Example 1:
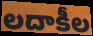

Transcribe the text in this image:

లదాకీల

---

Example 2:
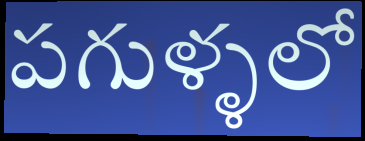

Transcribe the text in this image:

పగుళ్ళలో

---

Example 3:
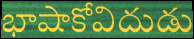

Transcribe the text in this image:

భాషాకోవిదుడు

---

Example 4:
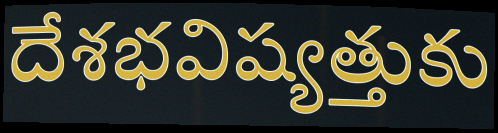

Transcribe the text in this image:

దేశభవిష్యత్తుకు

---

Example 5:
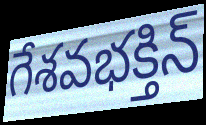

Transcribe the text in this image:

గేశవభక్తిన్